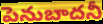
పెనుబాదనీ